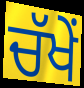
ਚੱਖੇਂ